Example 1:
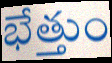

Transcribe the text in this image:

భేత్తుం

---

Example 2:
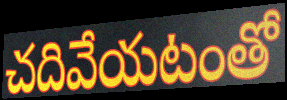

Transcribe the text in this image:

చదివేయటంతో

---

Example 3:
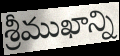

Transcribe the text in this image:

శ్రీముఖాన్ని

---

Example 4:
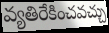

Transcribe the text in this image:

వ్యతిరేకించవచ్చు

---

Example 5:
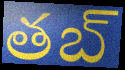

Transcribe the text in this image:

తబ్